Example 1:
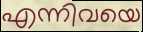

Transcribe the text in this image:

എന്നിവയെ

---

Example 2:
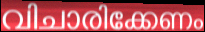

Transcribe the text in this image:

വിചാരിക്കേണം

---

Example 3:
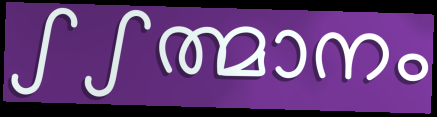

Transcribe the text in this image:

ഽഽത്മാനം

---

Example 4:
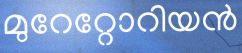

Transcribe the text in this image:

മുറേറ്റോറിയൻ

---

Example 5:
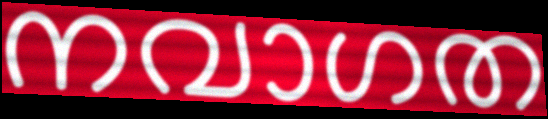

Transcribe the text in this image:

നവാഗത